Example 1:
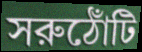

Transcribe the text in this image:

সরুঠোঁটি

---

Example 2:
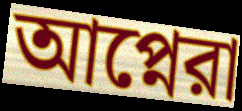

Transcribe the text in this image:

আপ্নেরা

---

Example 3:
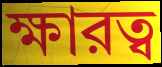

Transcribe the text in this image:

ক্ষারত্ব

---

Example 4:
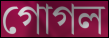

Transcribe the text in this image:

গোগল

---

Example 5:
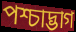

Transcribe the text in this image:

পশ্চাদ্ভাগ